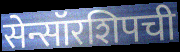
सेन्सॉरशिपची